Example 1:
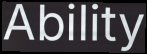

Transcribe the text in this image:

Ability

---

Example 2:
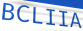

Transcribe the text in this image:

BCLIIA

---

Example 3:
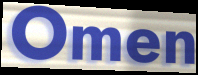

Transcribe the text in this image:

Omen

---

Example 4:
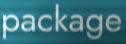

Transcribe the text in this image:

package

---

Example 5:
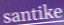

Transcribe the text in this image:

santike